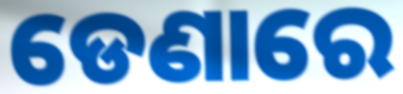
ଡେଣାରେ